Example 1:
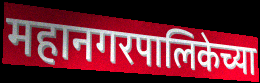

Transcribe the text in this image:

महानगरपालिकेच्या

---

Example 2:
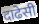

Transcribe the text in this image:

दाढेसी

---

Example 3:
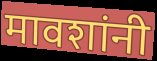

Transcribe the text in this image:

मावशांनी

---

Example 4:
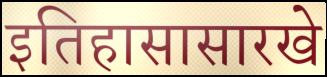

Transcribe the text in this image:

इतिहासासारखे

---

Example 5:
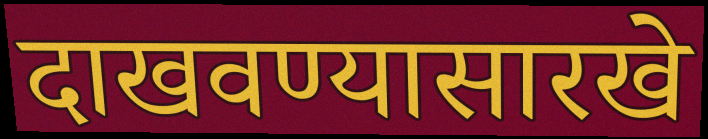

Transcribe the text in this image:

दाखवण्यासारखे